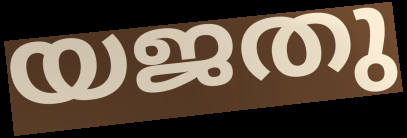
യജതു